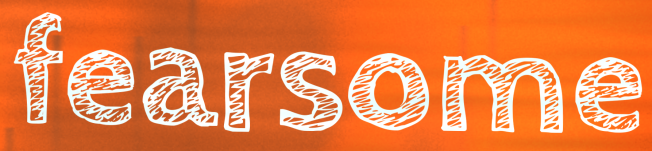
fearsome